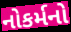
નોકર્મનો